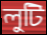
লুটি